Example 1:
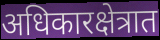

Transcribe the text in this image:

अधिकारक्षेत्रात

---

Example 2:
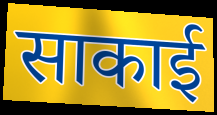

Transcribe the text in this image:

साकाई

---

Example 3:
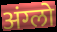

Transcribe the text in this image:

अंग्लो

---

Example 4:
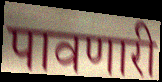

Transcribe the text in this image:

पावणारी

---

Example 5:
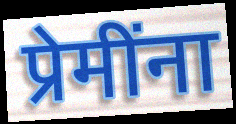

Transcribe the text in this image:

प्रेमींना